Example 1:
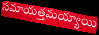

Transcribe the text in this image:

సమాయత్తమయ్యాయి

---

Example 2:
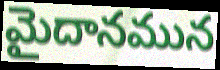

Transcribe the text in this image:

మైదానమున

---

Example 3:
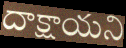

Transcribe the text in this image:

దాక్షాయని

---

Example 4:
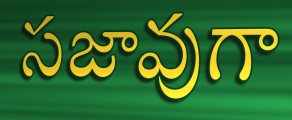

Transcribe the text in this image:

సజావుగా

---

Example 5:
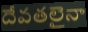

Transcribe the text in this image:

దేవతలైనా